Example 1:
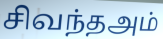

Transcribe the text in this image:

சிவந்தஅம்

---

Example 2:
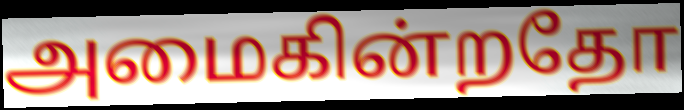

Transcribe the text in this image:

அமைகின்றதோ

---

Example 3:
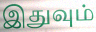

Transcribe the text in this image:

இதுவும்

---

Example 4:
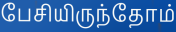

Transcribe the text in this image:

பேசியிருந்தோம்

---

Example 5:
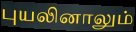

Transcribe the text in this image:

புயலினாலும்